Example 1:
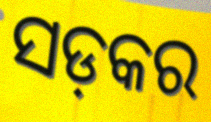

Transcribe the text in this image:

ସଡ଼କର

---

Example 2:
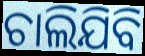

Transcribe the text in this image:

ଚାଲିଯିବି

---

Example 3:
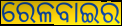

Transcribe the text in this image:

ରେଳବାଇର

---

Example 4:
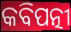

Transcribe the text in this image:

କବିପତ୍ନୀ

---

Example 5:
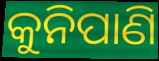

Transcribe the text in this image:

କୁନିପାଣି